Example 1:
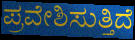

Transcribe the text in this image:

ಪ್ರವೇಶಿಸುತ್ತಿದೆ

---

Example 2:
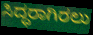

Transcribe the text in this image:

ಸಿದ್ಧರಾಗಿರಲು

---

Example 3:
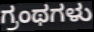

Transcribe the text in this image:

ಗ್ರಂಥಗಳು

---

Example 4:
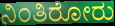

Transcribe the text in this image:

ನಿಂತಿರೋರು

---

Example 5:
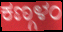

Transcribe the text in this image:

ಕಣ್ಗಳಂ